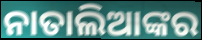
ନାତାଲିଆଙ୍କର